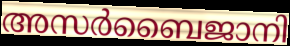
അസർബൈജാനി